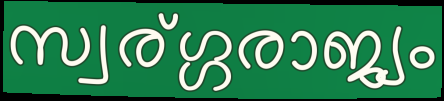
സ്വര്ഗ്ഗരാജ്യം